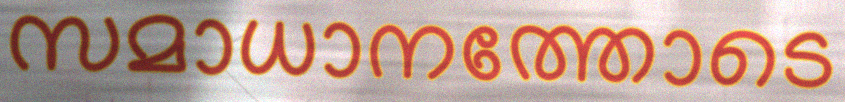
സമാധാനത്തോടെ